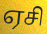
ஏசி